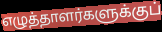
எழுத்தாளர்களுக்குப்